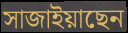
সাজাইয়াছেন